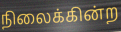
நிலைக்கின்ற